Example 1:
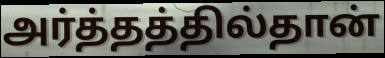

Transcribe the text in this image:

அர்த்தத்தில்தான்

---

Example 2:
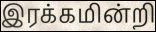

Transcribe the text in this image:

இரக்கமின்றி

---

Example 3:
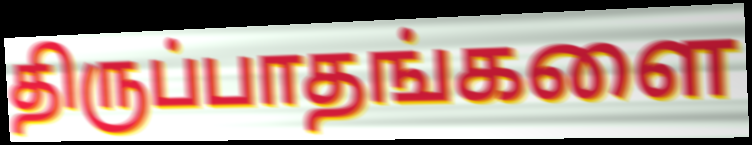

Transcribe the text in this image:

திருப்பாதங்களை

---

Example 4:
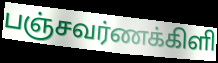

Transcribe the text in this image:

பஞ்சவர்ணக்கிளி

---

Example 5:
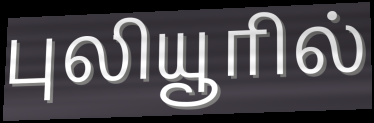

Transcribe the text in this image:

புலியூரில்